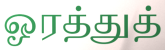
ஓரத்துத்